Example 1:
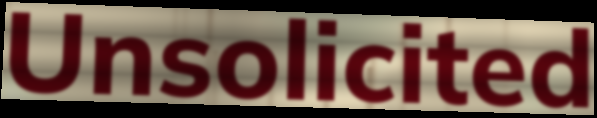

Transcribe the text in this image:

Unsolicited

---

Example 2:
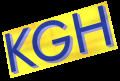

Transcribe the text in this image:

KGH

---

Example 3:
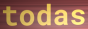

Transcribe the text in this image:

todas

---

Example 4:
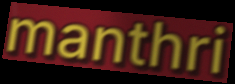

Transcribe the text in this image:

manthri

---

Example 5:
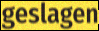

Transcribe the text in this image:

geslagen